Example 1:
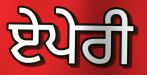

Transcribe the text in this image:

ਏਪੇਰੀ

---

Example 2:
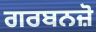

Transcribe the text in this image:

ਗਰਬਨਜ਼ੋ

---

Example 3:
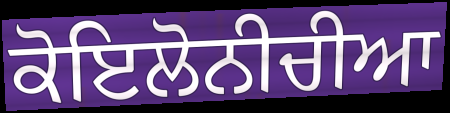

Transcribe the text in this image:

ਕੋਇਲੋਨੀਚੀਆ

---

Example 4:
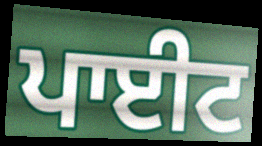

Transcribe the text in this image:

ਪਾਈਟ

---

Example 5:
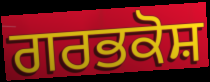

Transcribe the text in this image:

ਗਰਭਕੋਸ਼